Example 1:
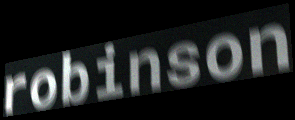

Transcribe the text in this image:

robinson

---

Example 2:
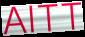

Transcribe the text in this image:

AITT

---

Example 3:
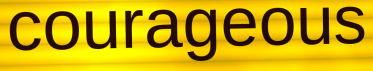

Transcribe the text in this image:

courageous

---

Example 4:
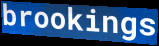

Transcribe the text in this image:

brookings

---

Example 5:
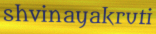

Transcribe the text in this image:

shvinayakruti